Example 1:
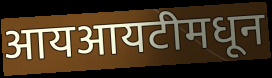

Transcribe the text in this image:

आयआयटीमधून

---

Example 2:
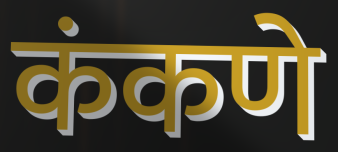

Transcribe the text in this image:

कंकणे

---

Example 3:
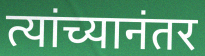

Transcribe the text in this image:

त्यांच्यानंतर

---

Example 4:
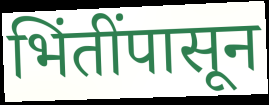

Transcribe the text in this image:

भिंतींपासून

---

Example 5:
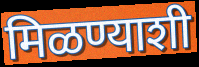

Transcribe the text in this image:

मिळण्याशी